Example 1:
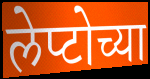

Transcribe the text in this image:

लेप्टोच्या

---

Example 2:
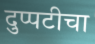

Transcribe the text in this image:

दुप्पटीचा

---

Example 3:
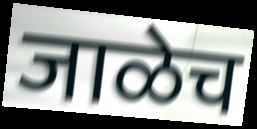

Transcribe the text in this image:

जाळेच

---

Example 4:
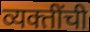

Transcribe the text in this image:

व्‍यक्‍तींची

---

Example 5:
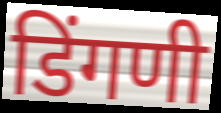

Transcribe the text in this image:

डिंगणी